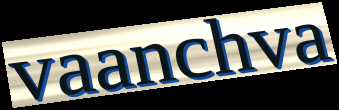
vaanchva